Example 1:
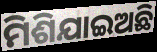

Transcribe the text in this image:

ମିଶିଯାଇଅଛି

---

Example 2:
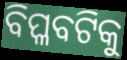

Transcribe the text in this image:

ବିପ୍ଳବଟିକୁ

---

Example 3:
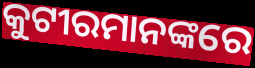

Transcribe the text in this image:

କୁଟୀରମାନଙ୍କରେ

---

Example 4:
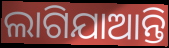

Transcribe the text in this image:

ଲାଗିଯାଆନ୍ତି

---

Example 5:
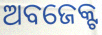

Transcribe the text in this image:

ଅବଜେକ୍ଟ